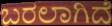
ಬರಲಾಗಿದೆ